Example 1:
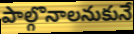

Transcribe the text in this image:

పాల్గొనాలనుకునే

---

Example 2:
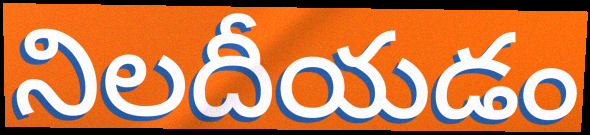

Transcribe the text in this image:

నిలదీయడం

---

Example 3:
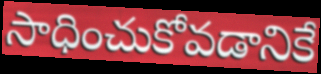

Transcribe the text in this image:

సాధించుకోవడానికే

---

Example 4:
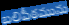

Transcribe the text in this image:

బలిపీఠమును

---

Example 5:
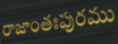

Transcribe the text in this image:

రాజాంతఃపురము